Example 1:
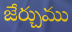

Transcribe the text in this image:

జేర్చుము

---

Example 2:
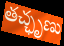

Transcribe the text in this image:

తచ్ఛృణు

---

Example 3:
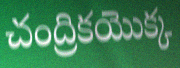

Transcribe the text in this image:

చంద్రికయొక్క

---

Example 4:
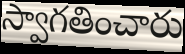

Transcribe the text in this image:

స్వాగతించారు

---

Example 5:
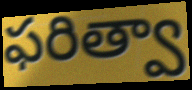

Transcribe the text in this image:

ఫరిత్వా